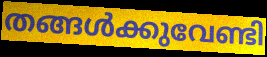
തങ്ങൾക്കുവേണ്ടി